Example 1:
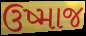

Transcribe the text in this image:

ઉષ્માજ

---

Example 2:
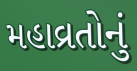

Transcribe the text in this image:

મહાવ્રતોનું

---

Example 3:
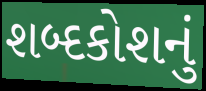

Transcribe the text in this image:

શબ્દકોશનું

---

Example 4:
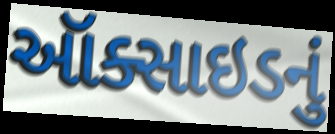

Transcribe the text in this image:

ઑક્સાઇડનું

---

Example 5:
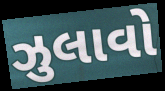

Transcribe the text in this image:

ઝુલાવો